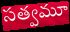
సత్వమూ